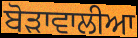
ਬੋੜਾਵਾਲੀਆ